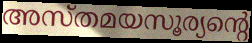
അസ്തമയസൂര്യന്റെ